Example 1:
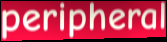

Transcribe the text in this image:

peripheral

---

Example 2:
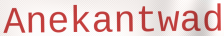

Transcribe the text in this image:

Anekantwad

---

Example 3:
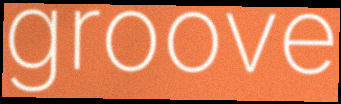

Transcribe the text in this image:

groove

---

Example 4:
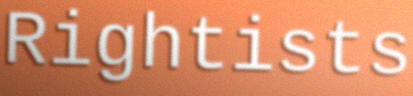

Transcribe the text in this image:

Rightists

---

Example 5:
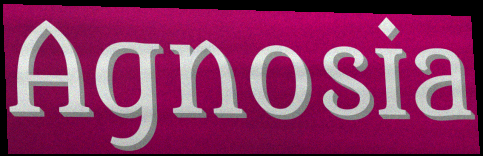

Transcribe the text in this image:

Agnosia